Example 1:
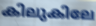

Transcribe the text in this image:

കിലുകിലേ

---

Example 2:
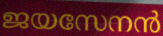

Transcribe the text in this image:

ജയസേനൻ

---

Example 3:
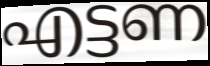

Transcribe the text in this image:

എട്ടണ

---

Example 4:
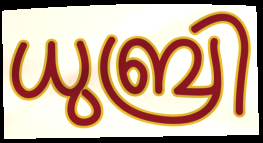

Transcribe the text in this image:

ധുബ്രി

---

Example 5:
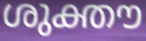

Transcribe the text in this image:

ശുക്തൗ